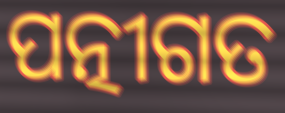
ପତ୍ନୀଗତ